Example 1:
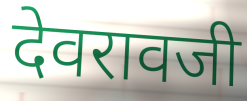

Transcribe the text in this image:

देवरावजी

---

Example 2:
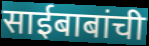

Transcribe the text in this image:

साईबाबांची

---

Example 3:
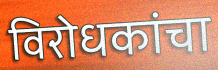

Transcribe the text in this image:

विरोधकांचा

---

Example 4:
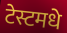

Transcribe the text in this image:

टेस्टमधे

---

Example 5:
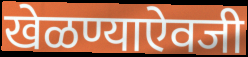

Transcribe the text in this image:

खेळण्याऐवजी